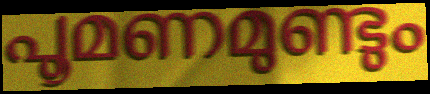
പൂമണമുണ്ടും